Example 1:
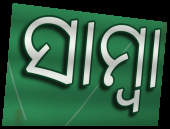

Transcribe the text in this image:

ସାମ୍ବା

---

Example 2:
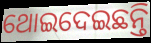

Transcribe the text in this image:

ଥୋଇଦେଇଛନ୍ତି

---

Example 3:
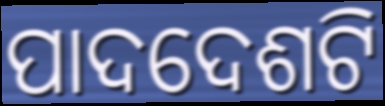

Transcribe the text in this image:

ପାଦଦେଶଟି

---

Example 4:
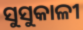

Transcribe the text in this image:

ସୁସୁକାଳୀ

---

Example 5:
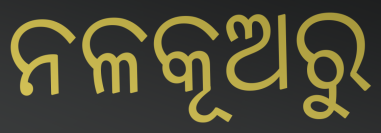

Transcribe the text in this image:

ନଳକୂଅରୁ